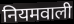
नियमवाली